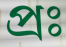
প্ৰঃ